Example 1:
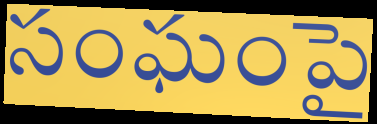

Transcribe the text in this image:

సంఘంపై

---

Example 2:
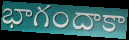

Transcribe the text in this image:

భాగందాకా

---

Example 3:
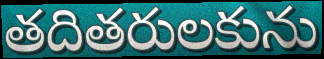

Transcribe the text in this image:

తదితరులకును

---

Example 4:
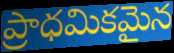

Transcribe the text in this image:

ప్రాధమికమైన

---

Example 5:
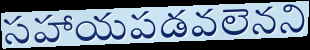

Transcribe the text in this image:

సహాయపడవలెనని